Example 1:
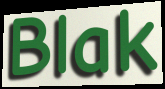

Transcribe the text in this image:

Blak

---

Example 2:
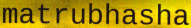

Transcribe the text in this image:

matrubhasha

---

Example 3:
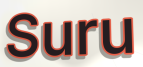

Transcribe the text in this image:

Suru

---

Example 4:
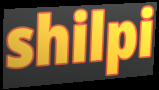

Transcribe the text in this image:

shilpi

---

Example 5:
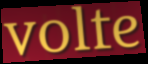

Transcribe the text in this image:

volte